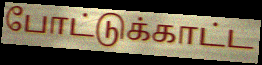
போட்டுக்காட்ட